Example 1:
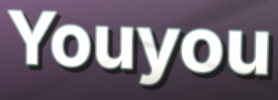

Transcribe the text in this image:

Youyou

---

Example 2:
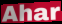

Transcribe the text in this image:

Ahar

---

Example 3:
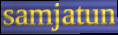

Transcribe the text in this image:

samjatun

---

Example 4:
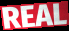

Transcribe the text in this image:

REAL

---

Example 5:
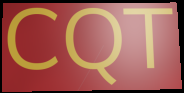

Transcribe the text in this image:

CQT